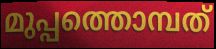
മുപ്പത്തൊമ്പത്